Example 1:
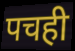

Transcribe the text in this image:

पचही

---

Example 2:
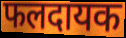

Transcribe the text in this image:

फलदायक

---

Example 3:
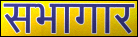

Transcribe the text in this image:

सभागार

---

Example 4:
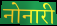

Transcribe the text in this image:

नोनारी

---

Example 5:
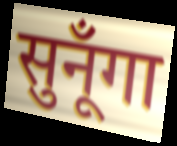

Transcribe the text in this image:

सुनूँगा